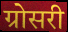
ग्रोसरी